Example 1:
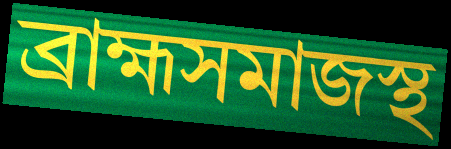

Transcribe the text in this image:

ব্রাহ্মসমাজস্থ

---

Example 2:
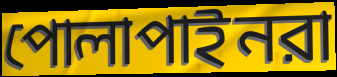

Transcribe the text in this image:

পোলাপাইনরা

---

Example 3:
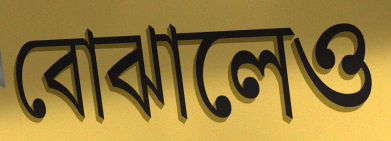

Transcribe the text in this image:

বোঝালেও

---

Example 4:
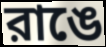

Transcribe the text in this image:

রাঙে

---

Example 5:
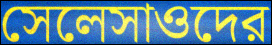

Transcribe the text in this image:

সেলেসাওদের